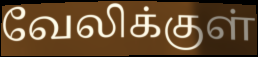
வேலிக்குள்